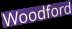
Woodford